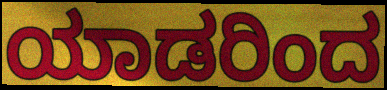
ಯಾಡರಿಂದ